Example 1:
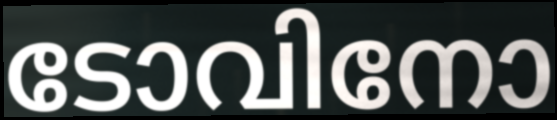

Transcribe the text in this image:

ടോവിനോ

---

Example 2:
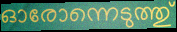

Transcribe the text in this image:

ഓരോന്നെടുത്തു്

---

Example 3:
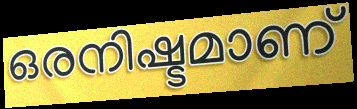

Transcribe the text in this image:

ഒരനിഷ്ടമാണ്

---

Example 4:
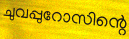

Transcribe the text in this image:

ചുവപ്പുറോസിന്റെ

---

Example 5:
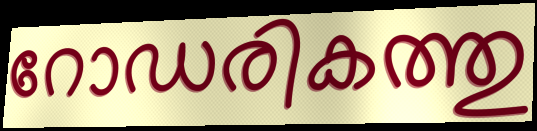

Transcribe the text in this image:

റോഡരികത്തു